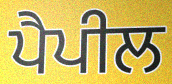
ਪੈਪੀਲ